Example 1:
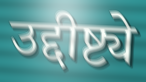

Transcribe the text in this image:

उद्दीष्ट्ये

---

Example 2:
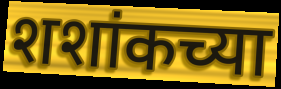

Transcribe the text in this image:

शशांकच्या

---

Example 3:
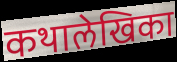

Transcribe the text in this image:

कथालेखिका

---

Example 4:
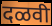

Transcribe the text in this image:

दळवी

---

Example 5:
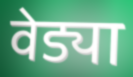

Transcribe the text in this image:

वेड्या